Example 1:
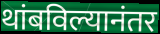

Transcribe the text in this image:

थांबविल्यानंतर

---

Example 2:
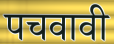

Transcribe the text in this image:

पचवावी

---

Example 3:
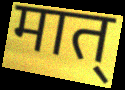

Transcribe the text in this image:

मात्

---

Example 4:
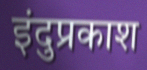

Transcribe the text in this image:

इंदुप्रकाश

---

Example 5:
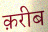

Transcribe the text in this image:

क़रीब